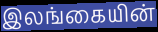
இலங்கையின்